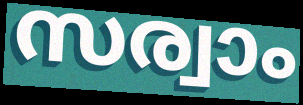
സര്വാം